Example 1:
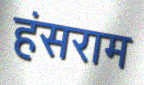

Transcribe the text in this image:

हंसराम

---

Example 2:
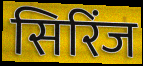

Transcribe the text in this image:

सिरिंज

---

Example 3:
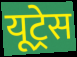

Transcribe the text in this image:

यूट्रेस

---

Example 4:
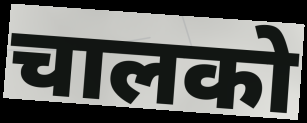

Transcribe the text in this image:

चालको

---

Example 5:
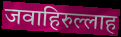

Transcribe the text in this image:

जवाहिरुल्लाह